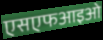
एसएफआइओ